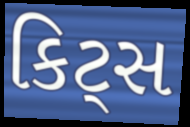
કિટ્સ